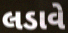
લડાવે